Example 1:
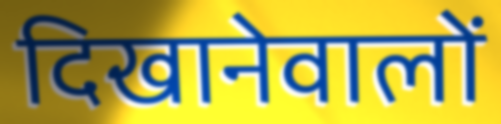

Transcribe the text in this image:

दिखानेवालों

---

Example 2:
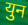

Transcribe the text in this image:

युन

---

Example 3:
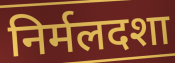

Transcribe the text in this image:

निर्मलदशा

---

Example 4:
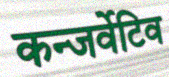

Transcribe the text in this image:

कन्जर्वेटिव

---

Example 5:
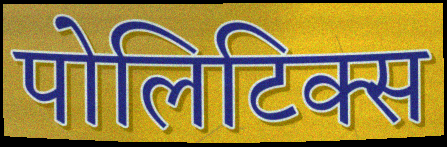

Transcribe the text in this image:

पोलिटिक्स